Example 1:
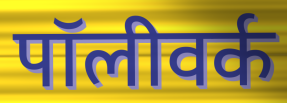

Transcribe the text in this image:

पॉलीवर्क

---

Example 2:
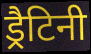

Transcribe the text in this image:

ड्रैटिनी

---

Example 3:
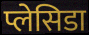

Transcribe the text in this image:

प्लेसिडा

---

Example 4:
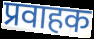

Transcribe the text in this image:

प्रवाहक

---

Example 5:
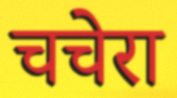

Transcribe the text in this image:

चचेरा